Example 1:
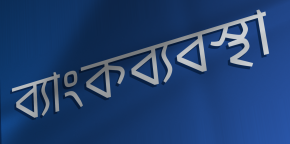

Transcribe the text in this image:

ব্যাংকব্যবস্থা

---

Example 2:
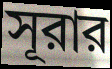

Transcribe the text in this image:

সূরার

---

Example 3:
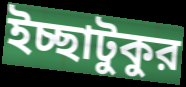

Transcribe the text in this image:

ইচ্ছাটুকুর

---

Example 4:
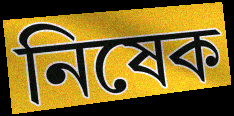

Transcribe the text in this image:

নিষেক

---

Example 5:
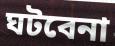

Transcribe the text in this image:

ঘটবেনা